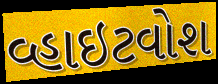
વ્હાઇટવોશ